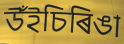
উঁইচিৰিঙা